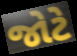
જોટે